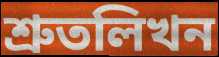
শ্রুতলিখন